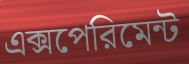
এক্সপেরিমেন্ট